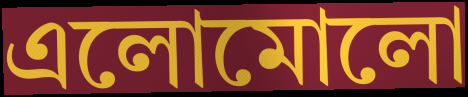
এলোমোলো